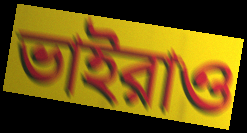
ভাইরাও